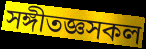
সঙ্গীতজ্ঞসকল